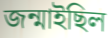
জন্মাইছিল